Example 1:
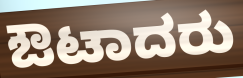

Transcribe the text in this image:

ಔಟಾದರು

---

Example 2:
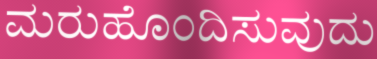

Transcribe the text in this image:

ಮರುಹೊಂದಿಸುವುದು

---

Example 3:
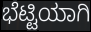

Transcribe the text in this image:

ಭೆಟ್ಟಿಯಾಗಿ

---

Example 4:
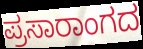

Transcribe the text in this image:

ಪ್ರಸಾರಾಂಗದ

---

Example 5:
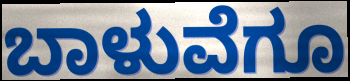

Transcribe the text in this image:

ಬಾಳುವೆಗೂ